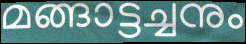
മങ്ങാട്ടച്ചനും